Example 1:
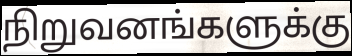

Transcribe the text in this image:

நிறுவனங்களுக்கு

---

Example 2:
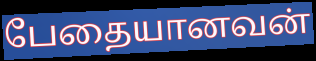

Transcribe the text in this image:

பேதையானவன்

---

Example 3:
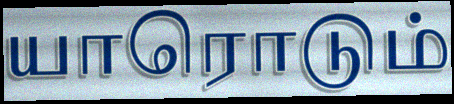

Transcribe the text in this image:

யாரொடும்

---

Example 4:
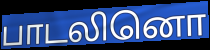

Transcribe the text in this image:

பாடலினொ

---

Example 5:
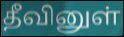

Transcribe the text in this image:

தீவினுள்